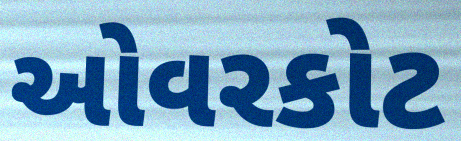
ઓવરકોટ